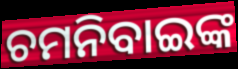
ଚମନିବାଇଙ୍କ